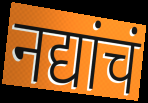
नद्यांचं